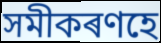
সমীকৰণহে